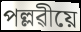
পল্লৱীয়ে